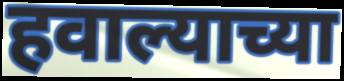
हवाल्याच्या